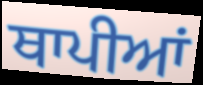
ਥਾਪੀਆਂ